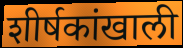
शीर्षकांखाली